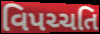
વિપચ્ચતિ